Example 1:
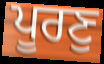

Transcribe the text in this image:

ਪੂਰਣੁ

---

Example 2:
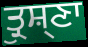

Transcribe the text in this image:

ਤ੍ਰੁਸ਼੍ਣਾ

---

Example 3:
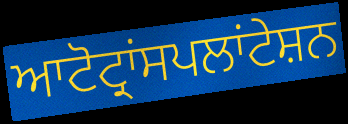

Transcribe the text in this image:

ਆਟੋਟ੍ਰਾਂਸਪਲਾਂਟੇਸ਼ਨ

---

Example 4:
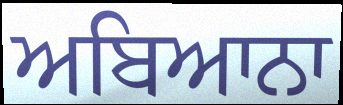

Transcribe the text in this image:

ਅਬਿਆਨਾ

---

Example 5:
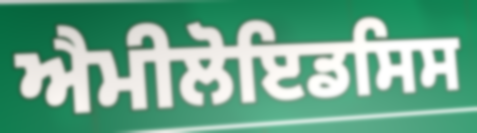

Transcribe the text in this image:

ਐਮੀਲੋਇਡਸਿਸ